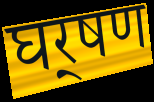
घर्षण